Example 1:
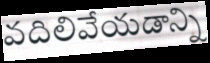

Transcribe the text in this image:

వదిలివేయడాన్ని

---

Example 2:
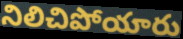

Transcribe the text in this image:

నిలిచిపోయారు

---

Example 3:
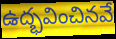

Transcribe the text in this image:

ఉద్భవించినవే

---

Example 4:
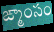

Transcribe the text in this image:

ఙ్మాంసం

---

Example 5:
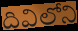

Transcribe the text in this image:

దివిలోని